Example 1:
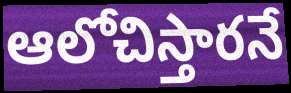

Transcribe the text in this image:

ఆలోచిస్తారనే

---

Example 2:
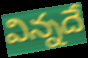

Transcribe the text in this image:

విన్నదే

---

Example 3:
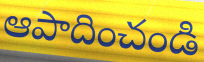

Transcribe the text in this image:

ఆపాదించండి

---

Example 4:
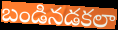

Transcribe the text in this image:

బండినడకలా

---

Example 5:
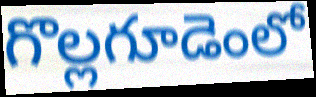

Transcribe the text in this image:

గొల్లగూడెంలో